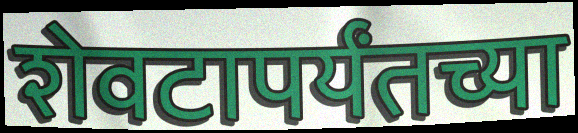
शेवटापर्यंतच्या